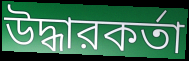
উদ্ধারকর্তা